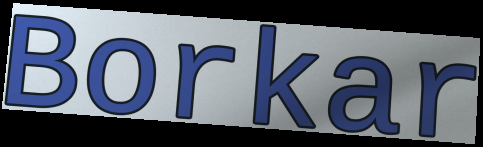
Borkar